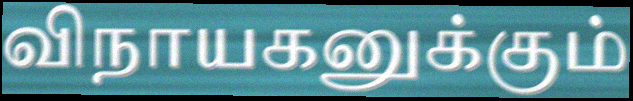
விநாயகனுக்கும்